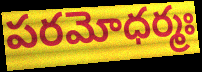
పరమోధర్మః